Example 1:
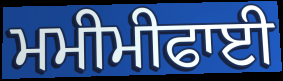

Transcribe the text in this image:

ਮਮੀਮੀਫਾਈ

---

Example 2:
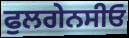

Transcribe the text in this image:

ਫੁਲਗੇਨਸੀਓ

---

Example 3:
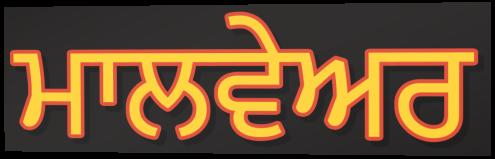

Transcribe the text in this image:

ਮਾਲਵੇਅਰ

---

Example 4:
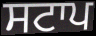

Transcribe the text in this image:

ਸਟਾਪ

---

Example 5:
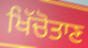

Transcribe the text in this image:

ਖਿੱਚੋਤਾਣ